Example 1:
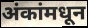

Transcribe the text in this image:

अंकांमधून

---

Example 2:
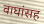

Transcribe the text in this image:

वाघांसह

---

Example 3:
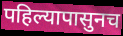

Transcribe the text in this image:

पहिल्यापासुनच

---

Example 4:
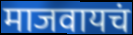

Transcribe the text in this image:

माजवायचं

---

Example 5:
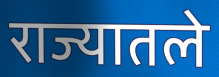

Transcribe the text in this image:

राज्यातले